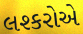
લશ્કરોએ